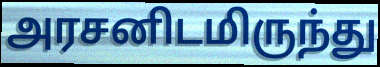
அரசனிடமிருந்து